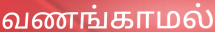
வணங்காமல்